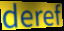
deref